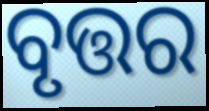
ବୃତ୍ତର